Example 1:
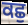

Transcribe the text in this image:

ਕਛੁ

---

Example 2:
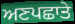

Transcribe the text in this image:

ਅਣਪਛਾਤੇ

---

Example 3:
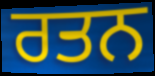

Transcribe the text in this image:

ਰਤਨ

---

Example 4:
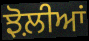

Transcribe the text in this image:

ਝੋਲ਼ੀਆਂ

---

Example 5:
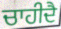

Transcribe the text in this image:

ਚਾਹੀਦੈ